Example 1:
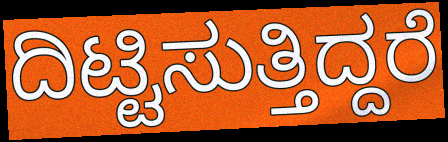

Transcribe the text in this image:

ದಿಟ್ಟಿಸುತ್ತಿದ್ದರೆ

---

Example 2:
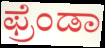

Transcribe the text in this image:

ಫ್ರೆಂಡಾ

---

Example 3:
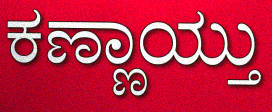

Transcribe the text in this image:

ಕಣ್ಣಾಯ್ತು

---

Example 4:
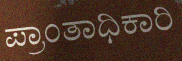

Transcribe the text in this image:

ಪ್ರಾಂತಾಧಿಕಾರಿ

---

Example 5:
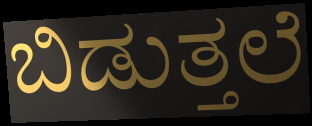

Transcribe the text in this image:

ಬಿಡುತ್ತಲೆ